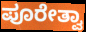
ಪೂರೇತ್ವಾ